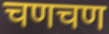
चणचण